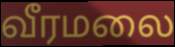
வீரமலை